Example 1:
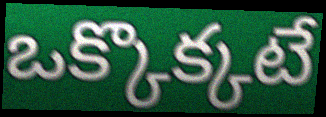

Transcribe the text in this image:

ఒక్కొక్కటే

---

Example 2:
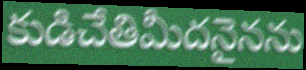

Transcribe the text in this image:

కుడిచేతిమీదనైనను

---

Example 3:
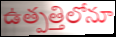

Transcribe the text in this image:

ఉత్పత్తిలోనూ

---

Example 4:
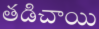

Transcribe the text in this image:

తడిచాయి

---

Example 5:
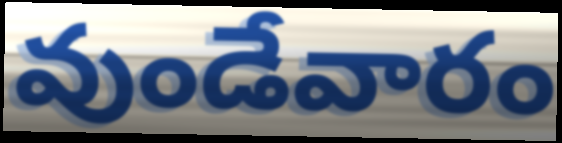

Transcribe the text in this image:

వుండేవారం